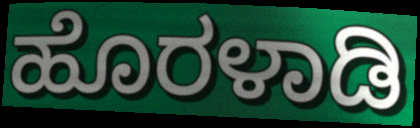
ಹೊರಳಾಡಿ